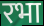
रभा